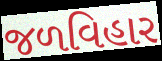
જળવિહાર